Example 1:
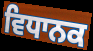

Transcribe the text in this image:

ਵਿਧਾਨਕ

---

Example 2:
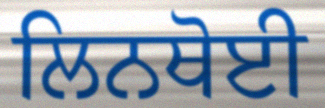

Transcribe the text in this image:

ਲਿਨਥੋਈ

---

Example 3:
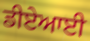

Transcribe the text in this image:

ਡੀਏਆਈ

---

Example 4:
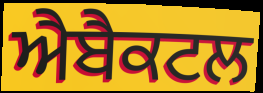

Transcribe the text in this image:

ਐਬੈਕਟਲ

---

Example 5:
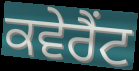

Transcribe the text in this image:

ਕਵੇਰੈਂਟ